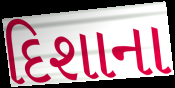
દિશાના